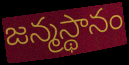
జన్మస్థానం